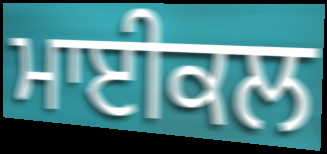
ਮਾਈਕਲ